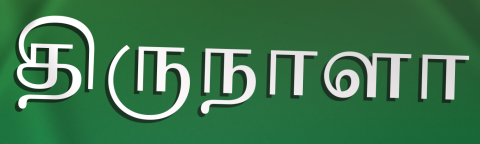
திருநாளா